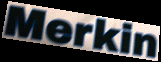
Merkin